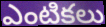
ఎంటికలు